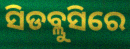
ସିଡବ୍ଲୁସିରେ